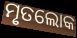
ମୃତଲୋକ